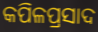
କପିଳପ୍ରସାଦ